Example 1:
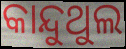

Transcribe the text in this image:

କାନ୍ଦୁଥୁଲ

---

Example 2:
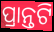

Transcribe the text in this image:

ପ୍ରାନ୍ତଟି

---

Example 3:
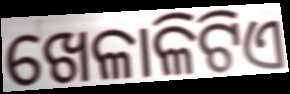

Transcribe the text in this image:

ଖେଳାଳିଟିଏ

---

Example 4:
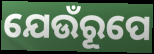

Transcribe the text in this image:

ଯେଉଁରୂପେ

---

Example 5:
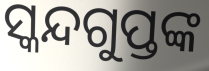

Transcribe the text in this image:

ସ୍କନ୍ଦଗୁପ୍ତଙ୍କ